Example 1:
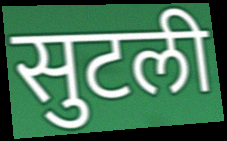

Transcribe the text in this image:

सुटली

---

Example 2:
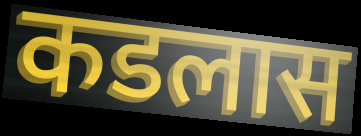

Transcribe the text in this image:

कडलास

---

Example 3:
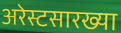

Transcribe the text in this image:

अरेस्टसारख्या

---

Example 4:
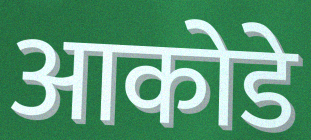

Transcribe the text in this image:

आकोडे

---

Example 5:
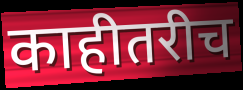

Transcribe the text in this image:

काहीतरीच